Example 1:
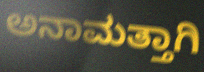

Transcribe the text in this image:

ಅನಾಮತ್ತಾಗಿ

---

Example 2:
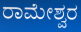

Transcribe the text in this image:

ರಾಮೇಶ್ವರ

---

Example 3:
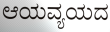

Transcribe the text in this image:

ಆಯವ್ಯಯದ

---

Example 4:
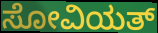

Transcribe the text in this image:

ಸೋವಿಯತ್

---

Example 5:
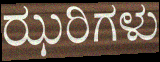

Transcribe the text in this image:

ಝರಿಗಳು